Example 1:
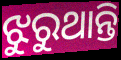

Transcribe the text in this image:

ଝୁରୁଥାନ୍ତି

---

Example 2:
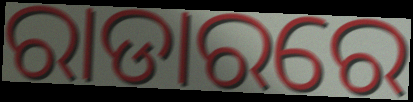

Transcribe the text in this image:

ରାଡାରରେ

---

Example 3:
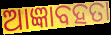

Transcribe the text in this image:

ଆଜ୍ଞାବହତା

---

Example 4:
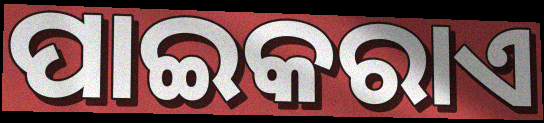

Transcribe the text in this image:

ପାଇକରାଏ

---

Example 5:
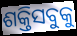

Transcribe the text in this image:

ଶକ୍ତିସବୁକୁ